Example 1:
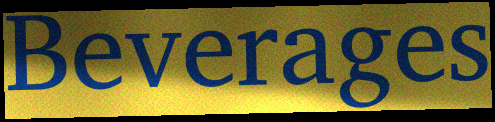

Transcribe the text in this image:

Beverages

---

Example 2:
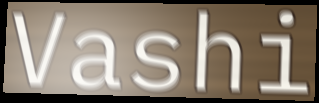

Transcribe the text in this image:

Vashi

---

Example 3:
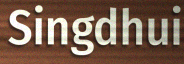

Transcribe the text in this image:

Singdhui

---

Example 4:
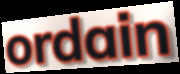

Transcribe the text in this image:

ordain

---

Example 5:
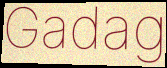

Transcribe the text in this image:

Gadag